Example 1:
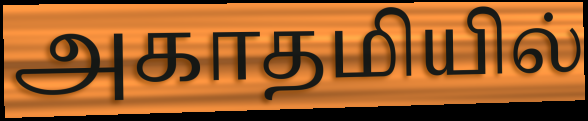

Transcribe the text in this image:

அகாதமியில்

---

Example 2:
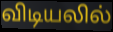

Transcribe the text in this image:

விடியலில்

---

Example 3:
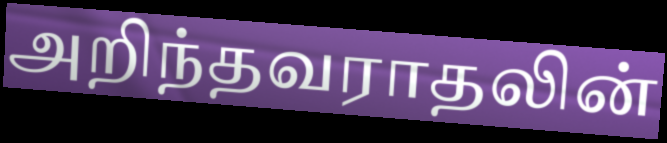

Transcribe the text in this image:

அறிந்தவராதலின்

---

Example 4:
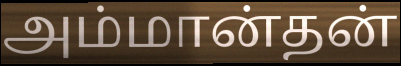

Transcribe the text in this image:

அம்மான்தன்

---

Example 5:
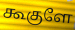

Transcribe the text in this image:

கூகுளே